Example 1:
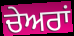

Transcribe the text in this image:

ਚੇਅਰਾਂ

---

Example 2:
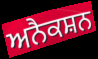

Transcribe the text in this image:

ਅਨੈਕਸ਼ਨ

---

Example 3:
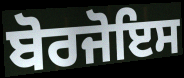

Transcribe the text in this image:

ਬੋਰਜੋਇਸ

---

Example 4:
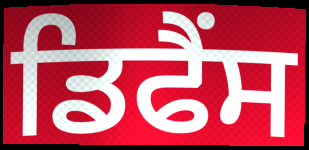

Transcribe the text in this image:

ਡਿਫੈਂਸ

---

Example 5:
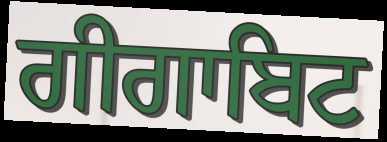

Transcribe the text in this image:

ਗੀਗਾਬਿਟ